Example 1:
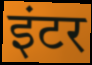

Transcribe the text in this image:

इंटर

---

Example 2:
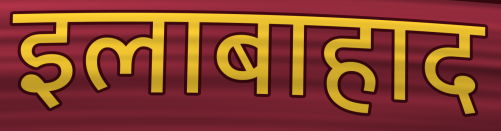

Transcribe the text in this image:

इलाबाहाद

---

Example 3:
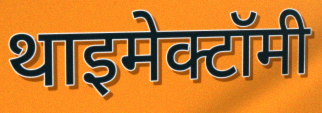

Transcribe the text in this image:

थाइमेक्टॉमी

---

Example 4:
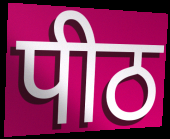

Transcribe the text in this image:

पीठ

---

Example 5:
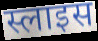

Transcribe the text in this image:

स्लाइस